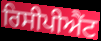
ਰਿਸੀਪੀਐਂਟ